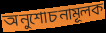
অনুশোচনামূলক